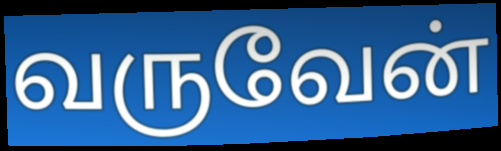
வருவேன்